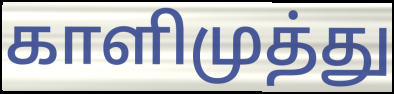
காளிமுத்து